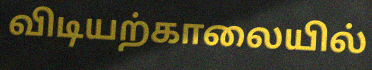
விடியற்காலையில்